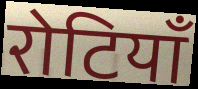
रोटियाँ